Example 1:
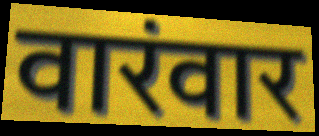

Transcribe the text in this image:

वारंवार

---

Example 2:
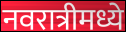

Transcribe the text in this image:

नवरात्रीमध्ये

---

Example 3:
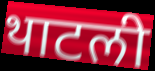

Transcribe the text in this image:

थाटली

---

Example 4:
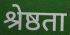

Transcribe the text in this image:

श्रेष्ठता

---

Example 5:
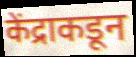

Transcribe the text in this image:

केंद्राकडून